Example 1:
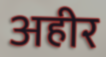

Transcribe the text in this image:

अहीर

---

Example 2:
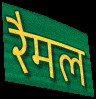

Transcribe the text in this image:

रैमल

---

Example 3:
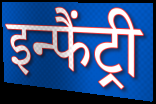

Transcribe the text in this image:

इन्फैंट्री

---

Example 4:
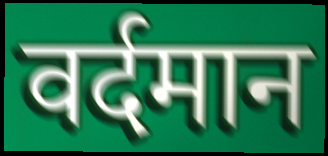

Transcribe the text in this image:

वर्दमान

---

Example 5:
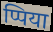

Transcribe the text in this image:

प्पिया